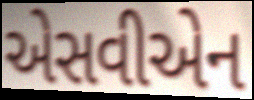
એસવીએન